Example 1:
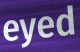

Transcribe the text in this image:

eyed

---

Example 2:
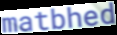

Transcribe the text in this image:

matbhed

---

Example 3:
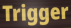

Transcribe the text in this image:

Trigger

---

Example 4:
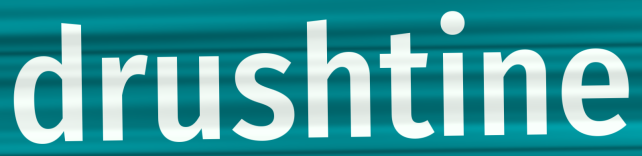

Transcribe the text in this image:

drushtine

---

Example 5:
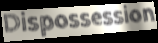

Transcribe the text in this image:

Dispossession